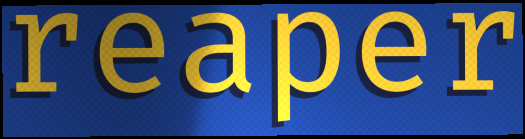
reaper